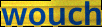
wouch